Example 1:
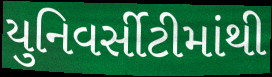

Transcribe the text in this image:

યુનિવર્સીટીમાંથી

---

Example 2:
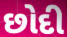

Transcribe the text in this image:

છોદી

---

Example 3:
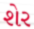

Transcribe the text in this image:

શેર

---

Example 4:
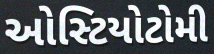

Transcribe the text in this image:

ઓસ્ટિયોટોમી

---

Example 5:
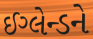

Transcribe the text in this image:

ઈગ્લેન્ડને